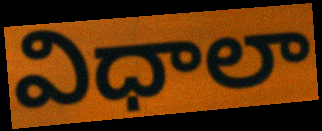
విధాలా